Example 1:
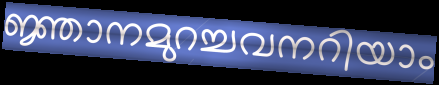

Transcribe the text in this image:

ജ്ഞാനമുറച്ചവനറിയാം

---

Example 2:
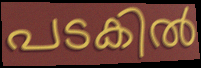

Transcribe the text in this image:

പടകിൽ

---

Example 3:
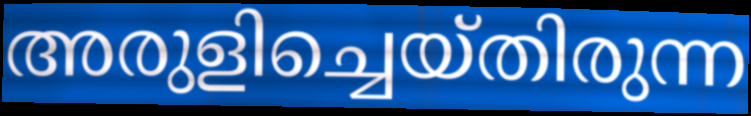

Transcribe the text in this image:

അരുളിച്ചെയ്തിരുന്ന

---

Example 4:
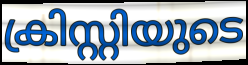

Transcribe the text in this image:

ക്രിസ്റ്റിയുടെ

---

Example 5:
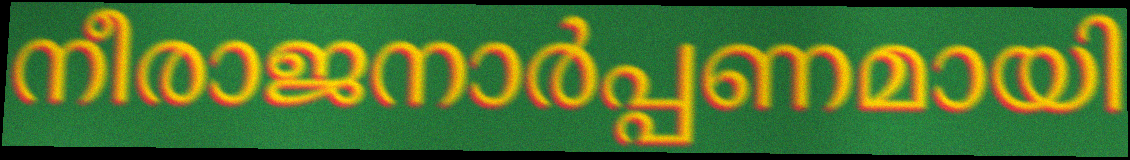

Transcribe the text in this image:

നീരാജനാർപ്പണമായി